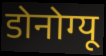
डोनोग्यू